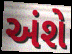
અંશે